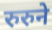
रुरुने